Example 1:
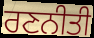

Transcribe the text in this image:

ਰਣਨੀਤੀ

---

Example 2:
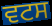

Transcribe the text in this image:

ਵਟਸ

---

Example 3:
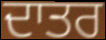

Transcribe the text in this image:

ਦਾਤਰ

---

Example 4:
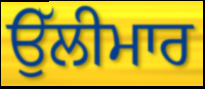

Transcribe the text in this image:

ਉੱਲੀਮਾਰ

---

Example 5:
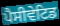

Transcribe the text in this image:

ਪੈਸੀਵੇਟਿਡ